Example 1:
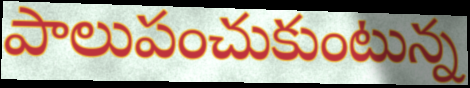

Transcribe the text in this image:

పాలుపంచుకుంటున్న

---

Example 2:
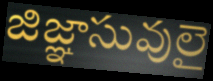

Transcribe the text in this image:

జిజ్ఞాసువులై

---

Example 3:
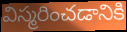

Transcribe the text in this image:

విస్మరించడానికి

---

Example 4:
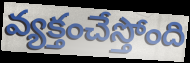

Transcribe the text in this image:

వ్యక్తంచేస్తోంది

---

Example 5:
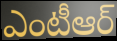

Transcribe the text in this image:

ఎంటీఆర్